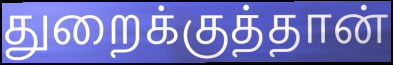
துறைக்குத்தான்